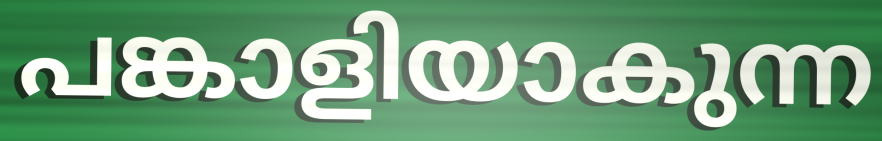
പങ്കാളിയാകുന്ന